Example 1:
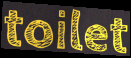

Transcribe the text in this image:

toilet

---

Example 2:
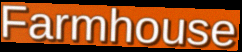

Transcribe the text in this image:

Farmhouse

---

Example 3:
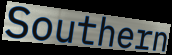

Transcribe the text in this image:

Southern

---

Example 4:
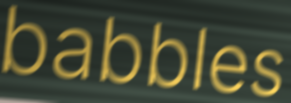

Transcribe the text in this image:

babbles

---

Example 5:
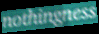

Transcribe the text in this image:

nothingness